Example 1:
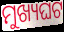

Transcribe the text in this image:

ମୁଖ୍ୟଘଟ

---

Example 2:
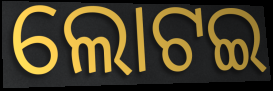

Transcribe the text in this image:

ଲୋଟଇ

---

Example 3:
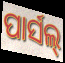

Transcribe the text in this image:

ପାର୍ସଲ୍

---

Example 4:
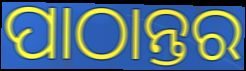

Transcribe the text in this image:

ପାଠାନ୍ତର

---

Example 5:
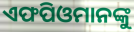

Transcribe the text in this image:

ଏଫପିଓମାନଙ୍କୁ